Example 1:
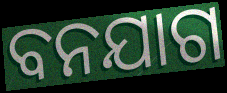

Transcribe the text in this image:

ବନଯାଗ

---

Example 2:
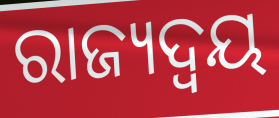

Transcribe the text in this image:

ରାଜ୍ୟଦ୍ୱୟ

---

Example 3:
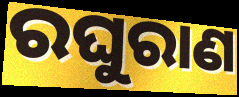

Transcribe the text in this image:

ରଘୁରାଣ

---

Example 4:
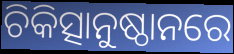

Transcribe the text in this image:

ଚିକିତ୍ସାନୁଷ୍ଠାନରେ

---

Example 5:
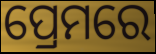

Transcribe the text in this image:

ପ୍ରେମରେ